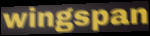
wingspan